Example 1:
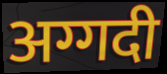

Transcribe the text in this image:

अग्गदी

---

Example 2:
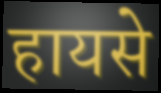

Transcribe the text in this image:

हायसे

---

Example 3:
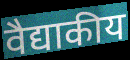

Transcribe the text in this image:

वैद्याकीय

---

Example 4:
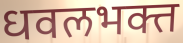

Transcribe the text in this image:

धवलभक्त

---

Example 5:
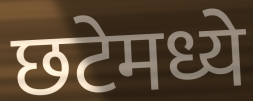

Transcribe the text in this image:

छटेमध्ये